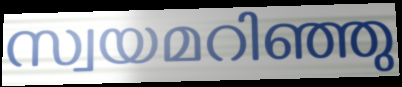
സ്വയമറിഞ്ഞു